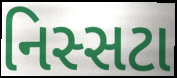
નિસ્સટા